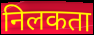
निलकता